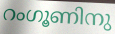
റംഗൂണിനു